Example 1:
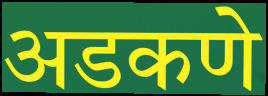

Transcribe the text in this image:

अडकणे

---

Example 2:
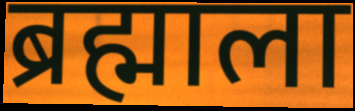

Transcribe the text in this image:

ब्रह्माला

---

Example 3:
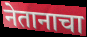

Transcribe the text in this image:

नेतानाचा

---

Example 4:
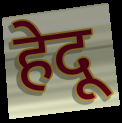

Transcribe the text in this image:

हेदू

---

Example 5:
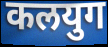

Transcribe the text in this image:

कलयुग